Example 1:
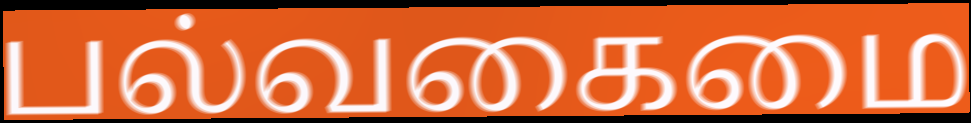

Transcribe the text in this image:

பல்வகைமை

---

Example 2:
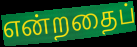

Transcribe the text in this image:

என்றதைப்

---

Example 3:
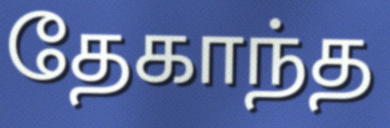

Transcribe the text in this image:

தேகாந்த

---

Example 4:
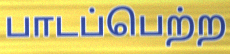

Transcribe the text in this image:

பாடப்பெற்ற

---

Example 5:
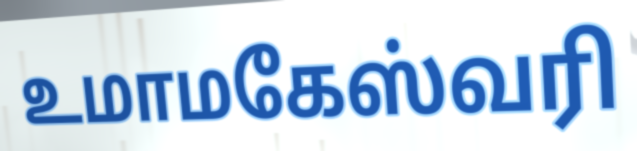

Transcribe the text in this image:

உமாமகேஸ்வரி